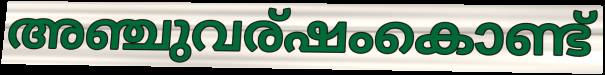
അഞ്ചുവര്ഷംകൊണ്ട്